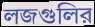
লজগুলির